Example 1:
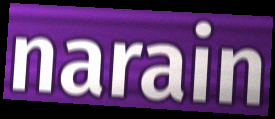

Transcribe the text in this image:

narain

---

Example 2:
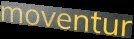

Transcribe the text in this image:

moventur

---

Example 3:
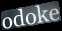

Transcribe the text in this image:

odoke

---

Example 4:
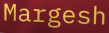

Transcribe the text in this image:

Margesh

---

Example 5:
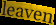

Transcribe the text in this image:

leaven